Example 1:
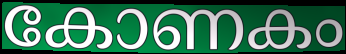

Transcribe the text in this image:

കോണകം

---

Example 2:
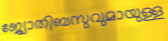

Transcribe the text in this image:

ജ്യോതിബസുവുമായുള്ള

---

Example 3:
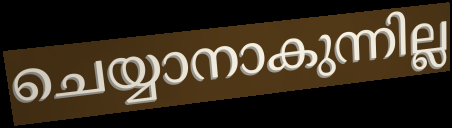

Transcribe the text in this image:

ചെയ്യാനാകുന്നില്ല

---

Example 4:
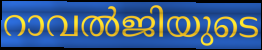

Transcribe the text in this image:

റാവൽജിയുടെ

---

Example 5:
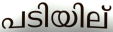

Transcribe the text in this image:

പടിയില്